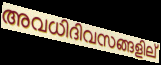
അവധിദിവസങ്ങളില്